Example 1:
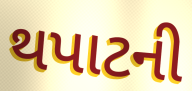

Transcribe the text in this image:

થપાટની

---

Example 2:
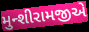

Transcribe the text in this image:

મુન્શીરામજીએ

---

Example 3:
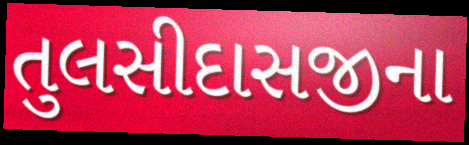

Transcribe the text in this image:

તુલસીદાસજીના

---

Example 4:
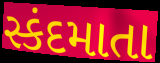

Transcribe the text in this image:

સ્કંદમાતા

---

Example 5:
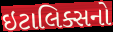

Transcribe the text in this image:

ઇટાલિક્સનો